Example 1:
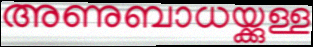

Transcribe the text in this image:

അണുബാധയ്ക്കുള്ള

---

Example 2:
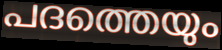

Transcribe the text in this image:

പദത്തെയും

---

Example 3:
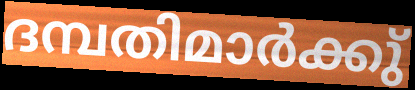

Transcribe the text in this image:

ദമ്പതിമാർക്കു്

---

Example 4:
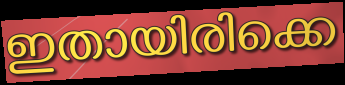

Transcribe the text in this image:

ഇതായിരിക്കെ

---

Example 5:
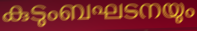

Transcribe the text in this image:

കുടുംബഘടനയും